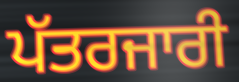
ਪੱਤਰਜਾਰੀ